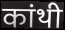
कांथी